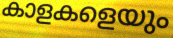
കാളകളെയും